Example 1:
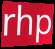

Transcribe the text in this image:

rhp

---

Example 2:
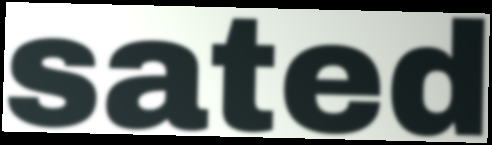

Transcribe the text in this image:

sated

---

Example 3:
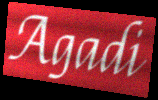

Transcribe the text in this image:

Agadi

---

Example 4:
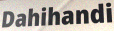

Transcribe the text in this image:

Dahihandi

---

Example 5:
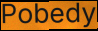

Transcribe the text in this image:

Pobedy